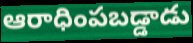
ఆరాధింపబడ్డాడు